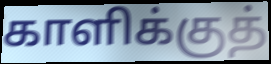
காளிக்குத்